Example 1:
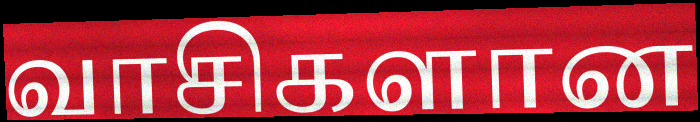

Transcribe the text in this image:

வாசிகளான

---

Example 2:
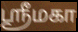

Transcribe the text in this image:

ஸ்ரீமகா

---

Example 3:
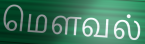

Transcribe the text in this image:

மௌவல்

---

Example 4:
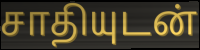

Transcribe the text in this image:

சாதியுடன்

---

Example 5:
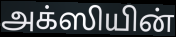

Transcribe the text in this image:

அக்ஸியின்